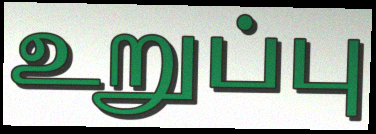
உறுப்பு